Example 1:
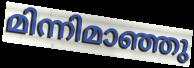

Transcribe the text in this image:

മിന്നിമാഞ്ഞു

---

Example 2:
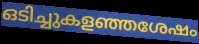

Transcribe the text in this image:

ഒടിച്ചുകളഞ്ഞശേഷം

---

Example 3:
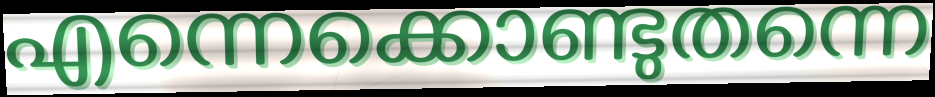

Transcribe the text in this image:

എന്നെക്കൊണ്ടുതന്നെ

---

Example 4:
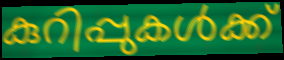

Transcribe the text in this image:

കുറിപ്പുകൾക്ക്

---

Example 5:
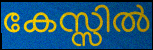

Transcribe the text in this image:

കേസ്സിൽ